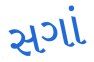
સગાં